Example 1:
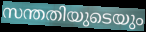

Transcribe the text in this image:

സന്തതിയുടെയും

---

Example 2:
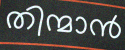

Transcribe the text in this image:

തിന്മാൻ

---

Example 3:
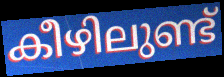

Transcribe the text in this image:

കീഴിലുണ്ട്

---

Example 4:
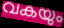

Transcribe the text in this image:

വകയും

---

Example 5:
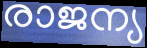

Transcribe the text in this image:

രാജന്യ